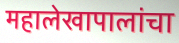
महालेखापालांचा